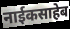
नाईकसाहेब